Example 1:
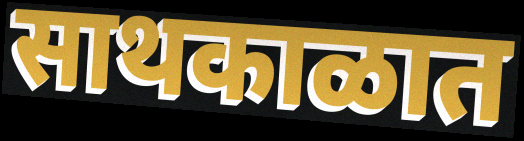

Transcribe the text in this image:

साथकाळात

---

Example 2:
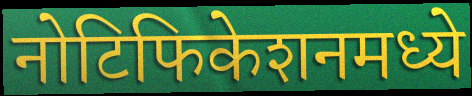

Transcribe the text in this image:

नोटिफिकेशनमध्ये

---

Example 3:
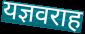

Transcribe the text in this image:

यज्ञवराह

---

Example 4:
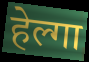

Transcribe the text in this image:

हेल्गा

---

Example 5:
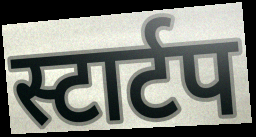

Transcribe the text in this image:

स्टार्टप